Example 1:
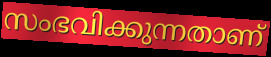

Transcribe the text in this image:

സംഭവിക്കുന്നതാണ്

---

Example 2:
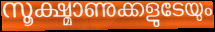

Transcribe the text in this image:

സൂക്ഷ്മാണുക്കളുടേയും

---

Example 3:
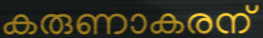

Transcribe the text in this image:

കരുണാകരന്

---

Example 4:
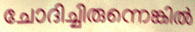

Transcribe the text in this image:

ചോദിച്ചിരുന്നെങ്കിൽ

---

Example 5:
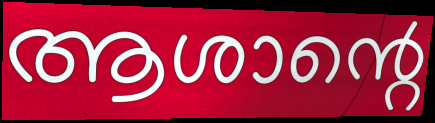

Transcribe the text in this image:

ആശാന്റെ